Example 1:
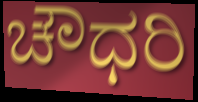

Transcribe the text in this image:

ಚೌಧರಿ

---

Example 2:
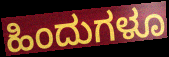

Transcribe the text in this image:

ಹಿಂದುಗಳೂ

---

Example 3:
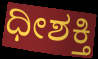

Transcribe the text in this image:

ಧೀಶಕ್ತಿ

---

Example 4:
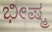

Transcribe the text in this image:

ಭೀಷ್ಮ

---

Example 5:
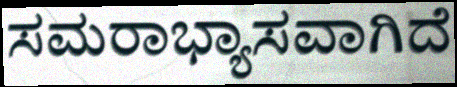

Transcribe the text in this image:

ಸಮರಾಭ್ಯಾಸವಾಗಿದೆ